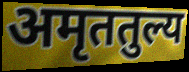
अमृततुल्य